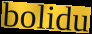
bolidu